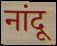
नांदू